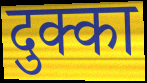
दुक्का